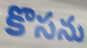
కొసను